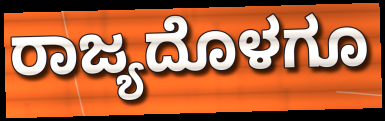
ರಾಜ್ಯದೊಳಗೂ